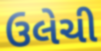
ઉલેચી